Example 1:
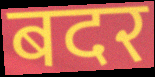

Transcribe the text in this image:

बदर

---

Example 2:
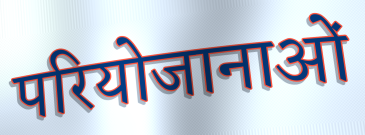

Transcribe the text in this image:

परियोजानाओं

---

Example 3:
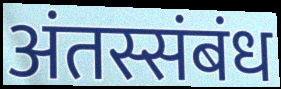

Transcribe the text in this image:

अंतस्संबंध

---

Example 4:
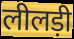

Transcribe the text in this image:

लीलड़ी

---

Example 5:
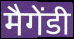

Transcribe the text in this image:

मैगेंडी